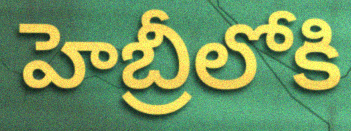
హెబ్రీలోకి